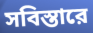
সবিস্তারে